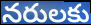
నరులకు